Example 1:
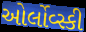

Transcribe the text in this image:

ઓર્લોવ્સ્કી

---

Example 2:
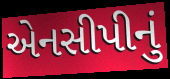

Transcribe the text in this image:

એનસીપીનું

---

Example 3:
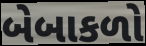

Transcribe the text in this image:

બેબાકળો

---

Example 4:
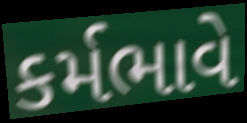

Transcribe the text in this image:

કર્મભાવે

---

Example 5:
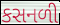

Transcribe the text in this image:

કસનળી